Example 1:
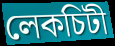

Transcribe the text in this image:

লেকচিটী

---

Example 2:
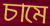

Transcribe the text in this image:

চামে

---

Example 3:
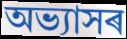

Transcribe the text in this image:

অভ্যাসৰ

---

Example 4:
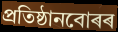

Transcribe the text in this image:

প্ৰতিষ্ঠানবোৰৰ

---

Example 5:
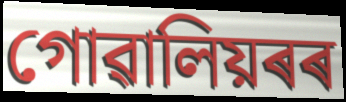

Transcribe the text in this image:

গোৱালিয়ৰৰ